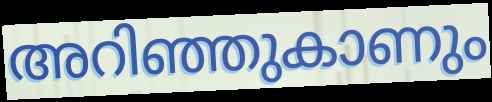
അറിഞ്ഞുകാണും